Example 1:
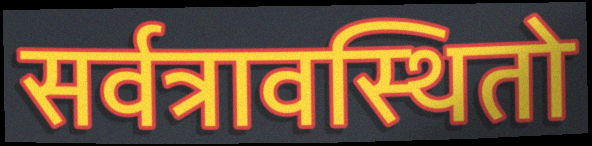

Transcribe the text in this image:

सर्वत्रावस्थितो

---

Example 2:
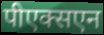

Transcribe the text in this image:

पीएक्सएन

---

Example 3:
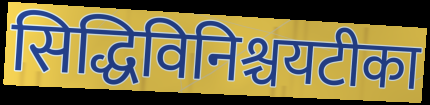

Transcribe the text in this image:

सिद्धिविनिश्चयटीका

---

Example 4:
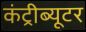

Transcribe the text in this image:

कंट्रीब्यूटर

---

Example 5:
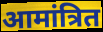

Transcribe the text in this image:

आमांत्रित